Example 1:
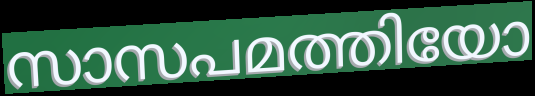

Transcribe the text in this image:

സാസപമത്തിയോ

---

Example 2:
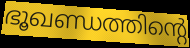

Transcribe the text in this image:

ഭൂഖണ്ഡത്തിന്റെ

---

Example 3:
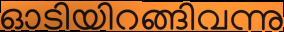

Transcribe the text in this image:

ഓടിയിറങ്ങിവന്നു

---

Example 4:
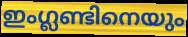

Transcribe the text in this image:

ഇംഗ്ലണ്ടിനെയും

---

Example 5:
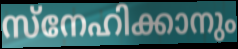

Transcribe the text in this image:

സ്നേഹിക്കാനും